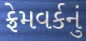
ફ્રેમવર્કનું